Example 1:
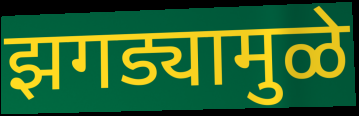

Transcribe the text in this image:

झगड्यामुळे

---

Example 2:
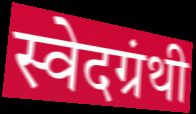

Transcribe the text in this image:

स्वेदग्रंथी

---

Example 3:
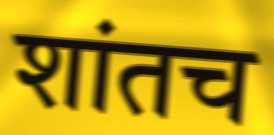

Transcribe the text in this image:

शांतच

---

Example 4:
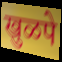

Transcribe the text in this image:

खुळपे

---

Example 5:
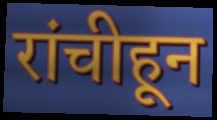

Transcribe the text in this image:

रांचीहून